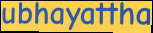
ubhayattha